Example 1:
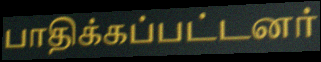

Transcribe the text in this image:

பாதிக்கப்பட்டனர்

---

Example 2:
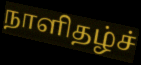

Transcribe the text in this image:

நாளிதழ்ச்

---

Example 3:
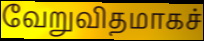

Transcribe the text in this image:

வேறுவிதமாகச்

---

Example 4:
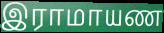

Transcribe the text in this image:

இராமாயண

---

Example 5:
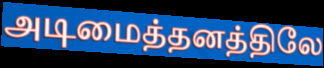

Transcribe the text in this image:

அடிமைத்தனத்திலே